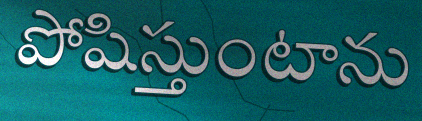
పోషిస్తుంటాను